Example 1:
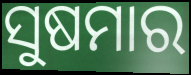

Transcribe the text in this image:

ସୁଷମାର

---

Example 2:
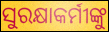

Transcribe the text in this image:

ସୁରକ୍ଷାକର୍ମୀଙ୍କୁ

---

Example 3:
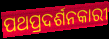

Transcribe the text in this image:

ପଥପ୍ରଦର୍ଶନକାରୀ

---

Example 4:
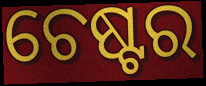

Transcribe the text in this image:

ଚେଷ୍ଟର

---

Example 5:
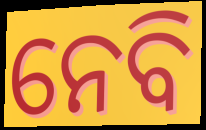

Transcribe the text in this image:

ନେବି